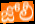
జోలీ